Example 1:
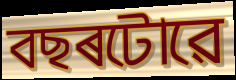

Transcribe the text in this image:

বছৰটোৱে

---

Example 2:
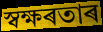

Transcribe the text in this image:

স্বক্ষৰতাৰ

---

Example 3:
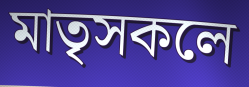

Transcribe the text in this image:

মাতৃসকলে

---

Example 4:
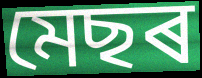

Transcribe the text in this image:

মেছৰ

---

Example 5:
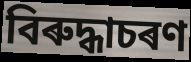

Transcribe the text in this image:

বিৰুদ্ধাচৰণ